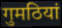
गुमठियां